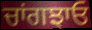
ਚਾਂਗਝਾਓ